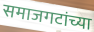
समाजगटांच्या